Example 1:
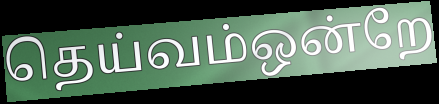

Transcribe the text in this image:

தெய்வம்ஒன்றே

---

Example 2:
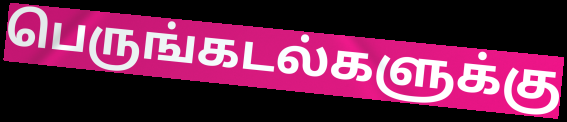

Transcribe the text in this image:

பெருங்கடல்களுக்கு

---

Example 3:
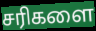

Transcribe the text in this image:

சரிகளை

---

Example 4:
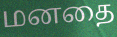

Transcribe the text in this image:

மனதை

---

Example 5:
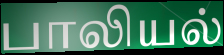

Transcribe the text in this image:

பாலியல்